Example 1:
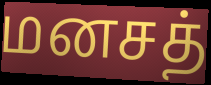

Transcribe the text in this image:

மனசத்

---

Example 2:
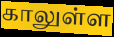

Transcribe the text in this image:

காலுள்ள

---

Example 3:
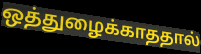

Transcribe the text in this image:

ஒத்துழைக்காததால்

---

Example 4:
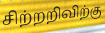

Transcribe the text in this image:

சிற்றறிவிற்கு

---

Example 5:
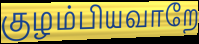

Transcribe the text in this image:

குழம்பியவாறே